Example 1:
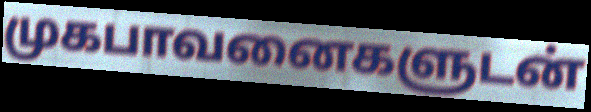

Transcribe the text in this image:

முகபாவனைகளுடன்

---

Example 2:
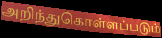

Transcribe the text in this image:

அறிந்துகொள்ளப்படும்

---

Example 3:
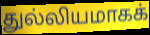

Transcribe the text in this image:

துல்லியமாகக்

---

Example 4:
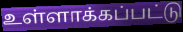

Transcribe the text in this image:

உள்ளாக்கப்பட்டு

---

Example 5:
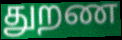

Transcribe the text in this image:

துறண